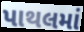
પાથલમાં